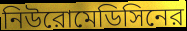
নিউরোমেডিসিনের